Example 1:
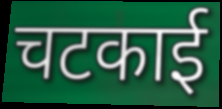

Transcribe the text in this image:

चटकाई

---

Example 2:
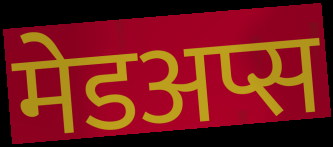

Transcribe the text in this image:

मेडअप्स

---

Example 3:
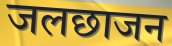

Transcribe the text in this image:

जलछाजन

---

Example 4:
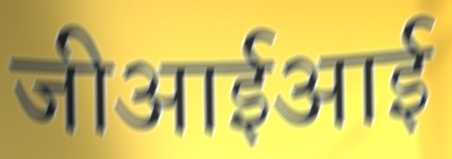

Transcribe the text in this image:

जीआईआई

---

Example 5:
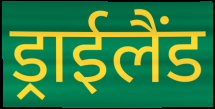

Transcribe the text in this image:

ड्राईलैंड